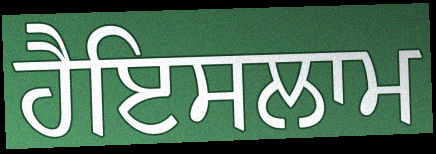
ਹੈਇਸਲਾਮ